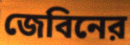
জেবিনের